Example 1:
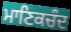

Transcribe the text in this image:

ਮਾਣਿਕਚੰਦ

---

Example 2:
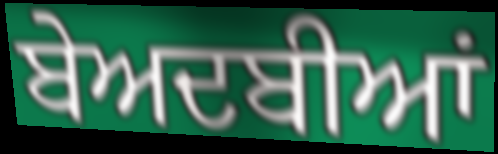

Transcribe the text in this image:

ਬੇਅਦਬੀਆਂ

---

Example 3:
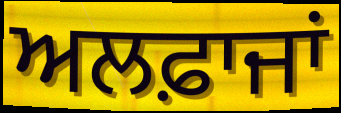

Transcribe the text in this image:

ਅਲਫ਼ਾਜਾਂ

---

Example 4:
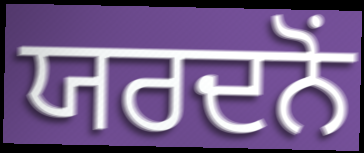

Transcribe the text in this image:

ਯਰਦਨੋਂ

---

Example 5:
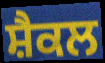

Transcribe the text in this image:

ਸ਼ੈਕਲ